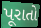
પૂરાતો